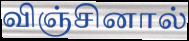
விஞ்சினால்